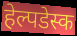
हेल्पडेस्क